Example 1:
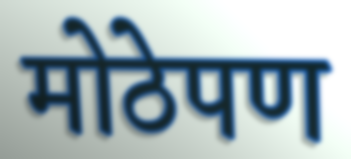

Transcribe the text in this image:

मोठेपण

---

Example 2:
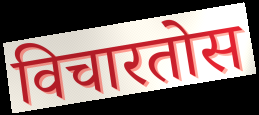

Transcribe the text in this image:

विचारतोस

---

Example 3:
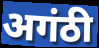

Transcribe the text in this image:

अगंठी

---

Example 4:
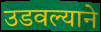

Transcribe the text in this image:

उडवल्याने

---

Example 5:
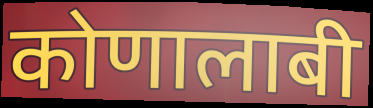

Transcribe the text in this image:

कोणालाबी